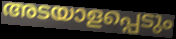
അടയാളപ്പെടും